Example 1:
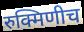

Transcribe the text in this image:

रुक्मिणीच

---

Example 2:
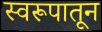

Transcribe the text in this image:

स्वरूपातून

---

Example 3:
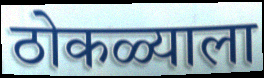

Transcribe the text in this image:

ठोकळ्याला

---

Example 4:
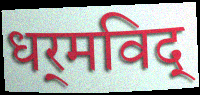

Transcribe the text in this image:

धर्मविद्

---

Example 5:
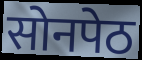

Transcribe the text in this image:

सोनपेठ